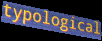
typological